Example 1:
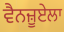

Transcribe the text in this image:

ਵੈਨਜ਼ੂਏਲਾ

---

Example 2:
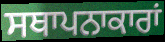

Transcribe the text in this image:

ਸਥਾਪਨਾਕਾਰਾਂ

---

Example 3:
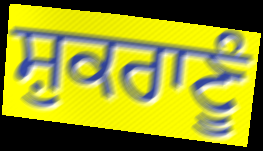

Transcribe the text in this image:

ਸ਼ੁਕਰਾਣੂੰ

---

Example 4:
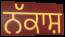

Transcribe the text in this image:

ਨੱਕਾਸ਼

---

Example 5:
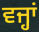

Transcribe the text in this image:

ਵਜ੍ਹਾਂ